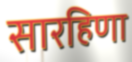
सारहिणा